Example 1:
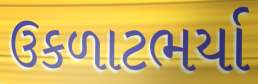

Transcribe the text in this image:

ઉકળાટભર્યા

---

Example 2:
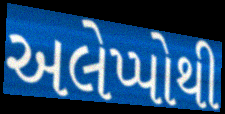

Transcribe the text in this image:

અલેપ્પોથી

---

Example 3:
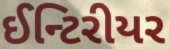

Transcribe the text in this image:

ઈન્ટિરીયર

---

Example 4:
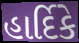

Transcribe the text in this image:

હાર્દિકે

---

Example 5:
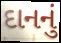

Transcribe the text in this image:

દાનનું